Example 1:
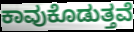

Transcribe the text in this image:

ಕಾವುಕೊಡುತ್ತವೆ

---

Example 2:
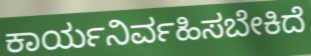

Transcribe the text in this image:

ಕಾರ್ಯನಿರ್ವಹಿಸಬೇಕಿದೆ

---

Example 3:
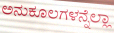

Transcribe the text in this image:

ಅನುಕೂಲಗಳನ್ನೆಲ್ಲಾ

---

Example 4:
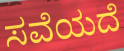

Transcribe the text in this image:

ಸವೆಯದೆ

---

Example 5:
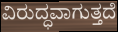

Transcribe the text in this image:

ವಿರುದ್ಧವಾಗುತ್ತದೆ